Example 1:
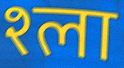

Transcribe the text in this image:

श्ला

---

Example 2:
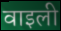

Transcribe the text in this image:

वाइली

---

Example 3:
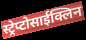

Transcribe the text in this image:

स्ट्रेप्टोसाईक्लिन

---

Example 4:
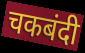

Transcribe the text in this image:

चकबंदी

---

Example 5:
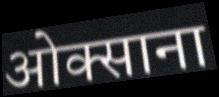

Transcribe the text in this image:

ओक्साना